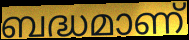
ബദ്ധമാണ്